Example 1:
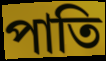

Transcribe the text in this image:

পাতি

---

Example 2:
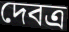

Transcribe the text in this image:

দেবত্র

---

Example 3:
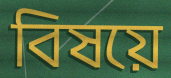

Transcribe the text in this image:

বিষয়ে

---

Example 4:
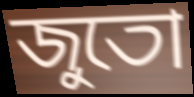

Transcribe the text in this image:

জুতো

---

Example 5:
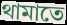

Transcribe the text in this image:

থামাতে